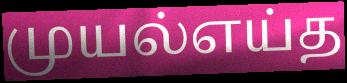
முயல்எய்த